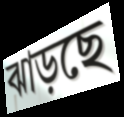
ঝাড়ছে